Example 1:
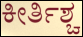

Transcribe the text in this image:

ಕೀರ್ತಿಶ್ಚ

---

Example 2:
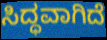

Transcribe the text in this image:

ಸಿದ್ಧವಾಗಿದೆ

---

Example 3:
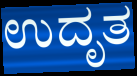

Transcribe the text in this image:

ಉದೃತ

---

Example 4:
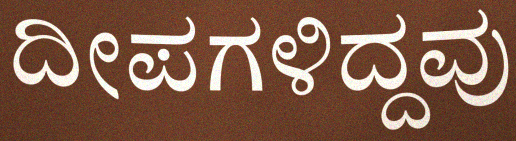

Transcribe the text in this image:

ದೀಪಗಳಿದ್ದವು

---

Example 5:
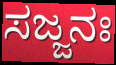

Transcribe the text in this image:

ಸಜ್ಜನಃ